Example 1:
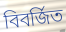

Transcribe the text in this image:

বিবর্জিত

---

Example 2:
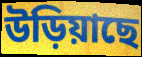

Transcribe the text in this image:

উড়িয়াছে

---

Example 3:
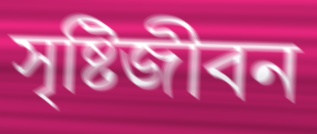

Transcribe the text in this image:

সৃষ্টিজীবন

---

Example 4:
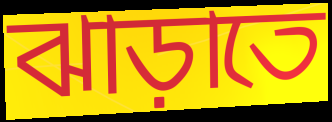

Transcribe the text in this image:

ঝাড়াতে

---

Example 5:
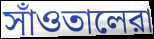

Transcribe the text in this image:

সাঁওতালেরা